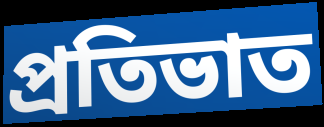
প্রতিভাত